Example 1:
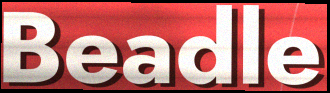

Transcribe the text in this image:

Beadle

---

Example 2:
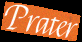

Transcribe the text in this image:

Prater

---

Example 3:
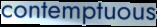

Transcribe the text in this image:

contemptuous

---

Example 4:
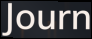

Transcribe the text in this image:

Journ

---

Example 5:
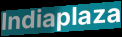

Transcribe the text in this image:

Indiaplaza